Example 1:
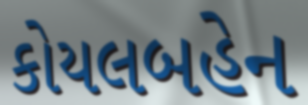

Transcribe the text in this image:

કોયલબહેન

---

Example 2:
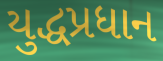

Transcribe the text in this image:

યુદ્ધપ્રધાન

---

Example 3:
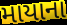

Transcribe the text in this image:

માયાના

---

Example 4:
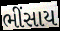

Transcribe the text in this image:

ભીંસાય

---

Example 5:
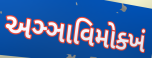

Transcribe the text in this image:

અઞ્ઞાવિમોક્ખં